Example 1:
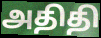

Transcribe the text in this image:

அதிதி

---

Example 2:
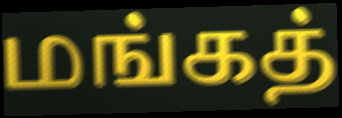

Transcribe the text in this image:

மங்கத்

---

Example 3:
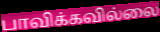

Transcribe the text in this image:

பாவிக்கவில்லை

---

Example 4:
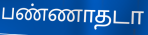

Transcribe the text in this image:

பண்ணாதடா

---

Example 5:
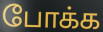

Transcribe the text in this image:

போக்க